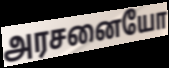
அரசனையோ